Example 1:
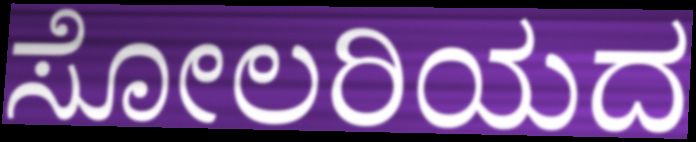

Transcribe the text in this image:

ಸೋಲರಿಯದ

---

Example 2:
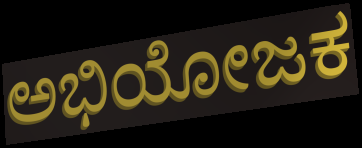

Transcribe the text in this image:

ಅಭಿಯೋಜಕ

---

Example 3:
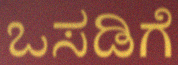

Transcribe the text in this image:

ಒಸಡಿಗೆ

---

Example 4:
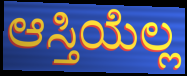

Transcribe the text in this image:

ಆಸ್ತಿಯೆಲ್ಲ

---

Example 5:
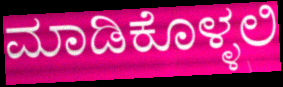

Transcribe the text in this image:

ಮಾಡಿಕೊಳ್ಳಲಿ